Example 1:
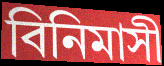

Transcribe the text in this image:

বিনিমাসী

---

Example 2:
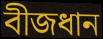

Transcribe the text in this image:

বীজধান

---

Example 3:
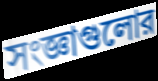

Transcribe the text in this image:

সংজ্ঞাগুলোর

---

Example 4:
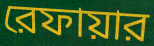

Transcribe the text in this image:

রেফায়ার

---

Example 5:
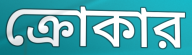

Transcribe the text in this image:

ক্রোকার